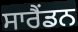
ਸਾਰੈਂਡਨ